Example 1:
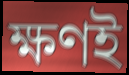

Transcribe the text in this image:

ক্ষণই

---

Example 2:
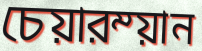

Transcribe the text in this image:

চেয়ারম্য়ান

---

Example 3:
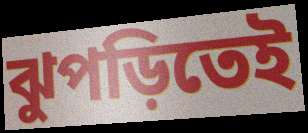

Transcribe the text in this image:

ঝুপড়িতেই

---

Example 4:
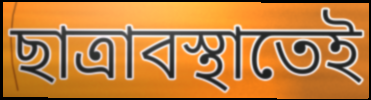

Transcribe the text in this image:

ছাত্রাবস্থাতেই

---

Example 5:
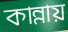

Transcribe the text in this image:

কান্নায়